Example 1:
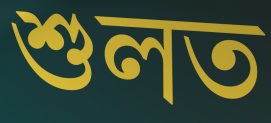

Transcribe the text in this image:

শুলত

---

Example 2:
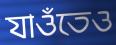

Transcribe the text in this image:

যাওঁতেও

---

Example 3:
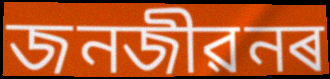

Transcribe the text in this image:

জনজীৱনৰ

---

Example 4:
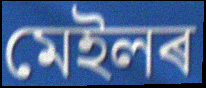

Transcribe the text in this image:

মেইলৰ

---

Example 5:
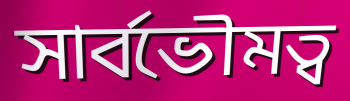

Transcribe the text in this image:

সাৰ্বভৌমত্ব